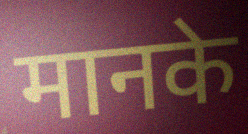
मानके